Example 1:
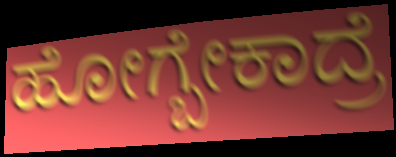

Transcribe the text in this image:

ಹೋಗ್ಬೇಕಾದ್ರೆ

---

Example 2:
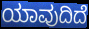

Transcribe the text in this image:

ಯಾವುದಿದೆ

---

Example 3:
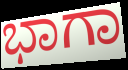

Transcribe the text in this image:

ಭಾಗಾ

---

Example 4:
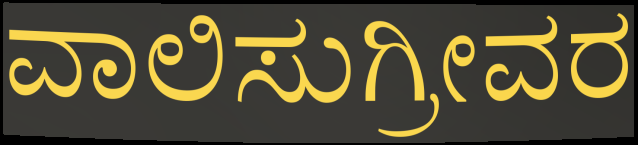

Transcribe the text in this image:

ವಾಲಿಸುಗ್ರೀವರ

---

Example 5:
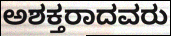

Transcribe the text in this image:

ಅಶಕ್ತರಾದವರು